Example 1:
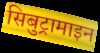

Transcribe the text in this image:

सिबुट्रामाइन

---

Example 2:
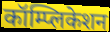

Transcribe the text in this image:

कॉम्प्लिकेशन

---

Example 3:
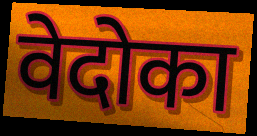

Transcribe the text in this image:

वेदोका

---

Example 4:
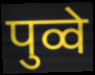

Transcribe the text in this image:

पुव्वे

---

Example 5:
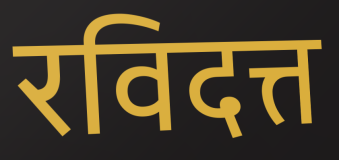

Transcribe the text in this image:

रविदत्त